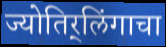
ज्योतिर्लिंगाचा